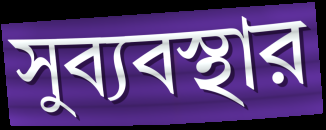
সুব্যবস্থার